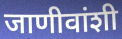
जाणीवांशी